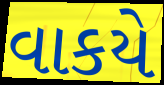
વાકયે